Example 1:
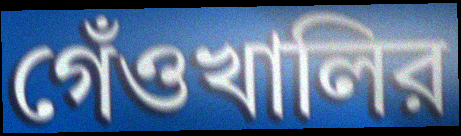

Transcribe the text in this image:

গেঁওখালির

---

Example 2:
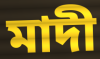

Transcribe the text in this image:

মাদী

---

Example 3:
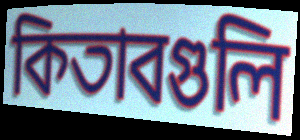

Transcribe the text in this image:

কিতাবগুলি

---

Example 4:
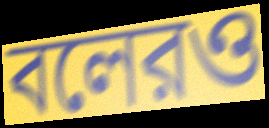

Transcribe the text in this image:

বলেরও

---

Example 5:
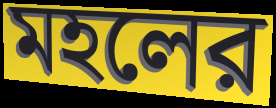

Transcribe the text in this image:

মহলের